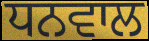
ਧਨਵਾਲ